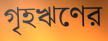
গৃহঋণের